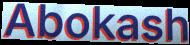
Abokash